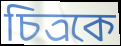
চিত্ৰকে